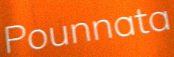
Pounnata